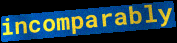
incomparably